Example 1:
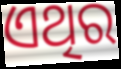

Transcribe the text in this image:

ଏଥିର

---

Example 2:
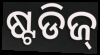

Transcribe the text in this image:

ଷ୍ଟଡିଜ୍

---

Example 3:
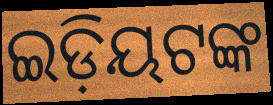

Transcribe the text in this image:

ଇଡ଼ିୟଟଙ୍କ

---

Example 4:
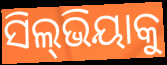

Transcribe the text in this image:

ସିଲ୍‍ଭିୟାକୁ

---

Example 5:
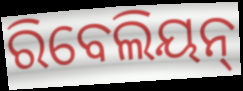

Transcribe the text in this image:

ରିବେଲିୟନ୍